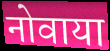
नोवाया